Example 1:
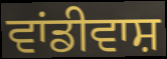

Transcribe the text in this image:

ਵਾਂਡੀਵਾਸ਼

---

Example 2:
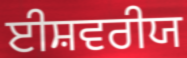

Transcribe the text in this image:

ਈਸ਼ਵਰੀਯ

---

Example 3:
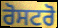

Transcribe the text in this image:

ਰੋਸਟਰੋ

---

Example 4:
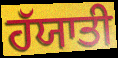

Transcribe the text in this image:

ਹੱਯਾਤੀ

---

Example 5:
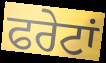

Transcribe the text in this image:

ਫਰੇਟਾਂ